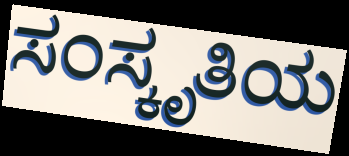
ಸಂಸ್ಕೃತಿಯ